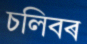
চলিবৰ